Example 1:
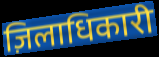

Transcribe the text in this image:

ज़िलाधिकारी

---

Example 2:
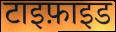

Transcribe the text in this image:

टाइफ़ाइड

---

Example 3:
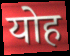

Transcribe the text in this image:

योह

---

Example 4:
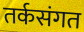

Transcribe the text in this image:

तर्कसंगत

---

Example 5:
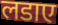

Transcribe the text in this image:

लडाए